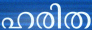
ഹരിത